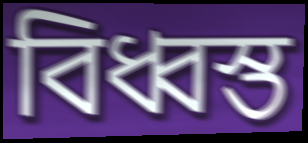
বিধ্বস্ত